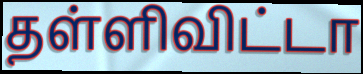
தள்ளிவிட்டா